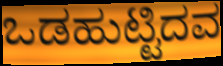
ಒಡಹುಟ್ಟಿದವ